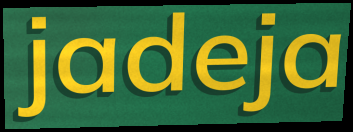
jadeja